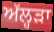
ਅੱਲ੍ਹੜਾ